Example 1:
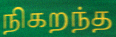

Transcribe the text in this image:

நிகறந்த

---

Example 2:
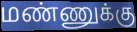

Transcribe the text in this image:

மண்ணுக்கு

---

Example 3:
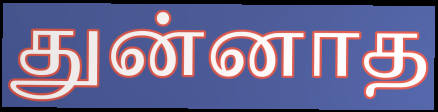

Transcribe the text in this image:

துன்னாத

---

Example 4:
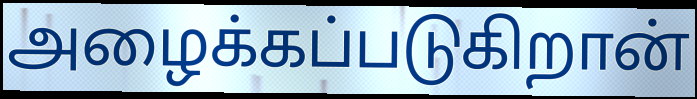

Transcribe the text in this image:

அழைக்கப்படுகிறான்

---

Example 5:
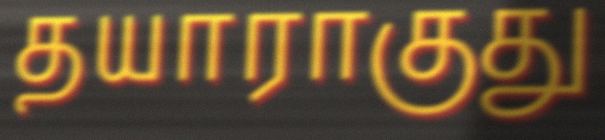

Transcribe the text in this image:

தயாராகுது